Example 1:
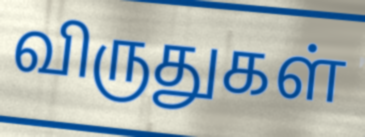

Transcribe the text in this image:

விருதுகள்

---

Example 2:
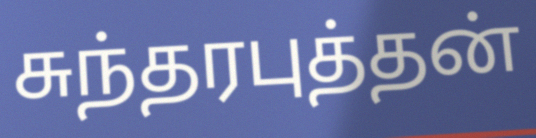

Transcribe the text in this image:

சுந்தரபுத்தன்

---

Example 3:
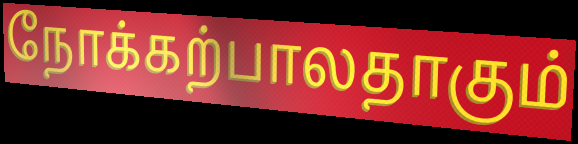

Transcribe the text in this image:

நோக்கற்பாலதாகும்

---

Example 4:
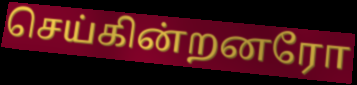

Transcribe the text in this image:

செய்கின்றனரோ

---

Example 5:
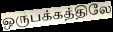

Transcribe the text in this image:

ஒருபக்கத்திலே